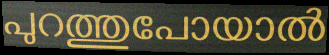
പുറത്തുപോയാൽ